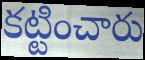
కట్టించారు